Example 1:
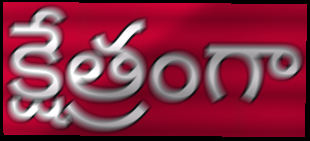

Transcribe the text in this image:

క్షేత్రంగా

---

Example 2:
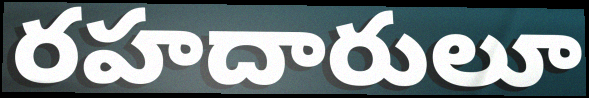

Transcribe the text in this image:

రహదారులూ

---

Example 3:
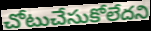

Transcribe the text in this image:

చోటుచేసుకోలేదని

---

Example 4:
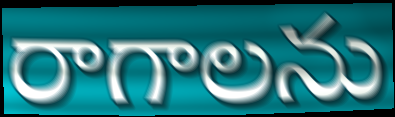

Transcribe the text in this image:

రాగాలను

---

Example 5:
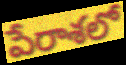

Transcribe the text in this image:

పేరాశలో